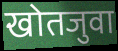
खोतजुवा